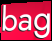
bag